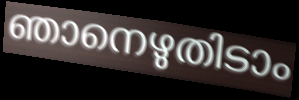
ഞാനെഴുതിടാം